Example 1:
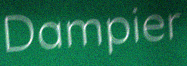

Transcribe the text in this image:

Dampier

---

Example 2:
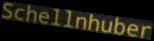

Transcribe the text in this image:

Schellnhuber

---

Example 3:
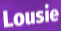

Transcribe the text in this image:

Lousie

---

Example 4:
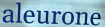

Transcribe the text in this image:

aleurone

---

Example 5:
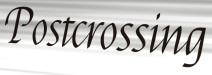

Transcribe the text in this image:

Postcrossing